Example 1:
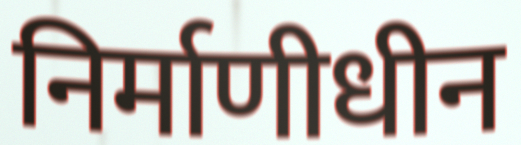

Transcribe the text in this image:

निर्माणीधीन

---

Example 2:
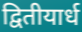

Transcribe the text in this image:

द्वितीयार्ध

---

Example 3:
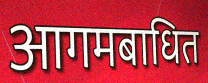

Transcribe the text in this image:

आगमबाधित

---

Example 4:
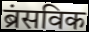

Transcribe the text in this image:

ब्रंसविक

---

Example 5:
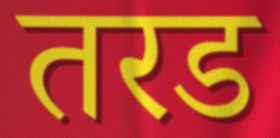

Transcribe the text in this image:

तरड